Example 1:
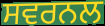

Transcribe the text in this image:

ਸਵਰਨਲ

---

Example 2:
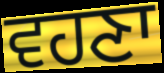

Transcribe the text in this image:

ਵਹਣਾ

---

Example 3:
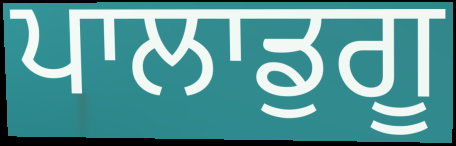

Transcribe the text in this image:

ਪਾਲਾਡੁਗੂ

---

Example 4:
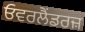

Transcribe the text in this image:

ਓਵਰਲੈਂਡਰਜ਼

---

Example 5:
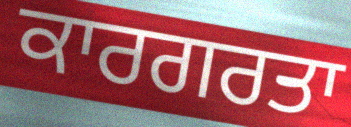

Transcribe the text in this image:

ਕਾਰਗਰਤਾ